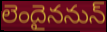
లెందైననున్